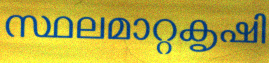
സ്ഥലമാറ്റകൃഷി